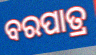
ବରପାତ୍ର